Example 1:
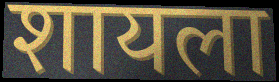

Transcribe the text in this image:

शायला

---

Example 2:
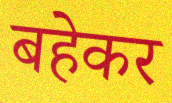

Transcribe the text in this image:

बहेकर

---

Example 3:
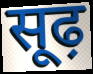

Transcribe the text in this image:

सूढ़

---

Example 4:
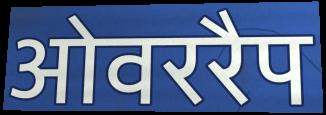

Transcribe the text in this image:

ओवररैप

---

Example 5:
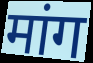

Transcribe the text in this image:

मांग